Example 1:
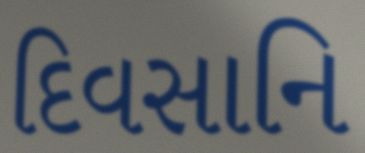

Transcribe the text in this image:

દિવસાનિ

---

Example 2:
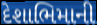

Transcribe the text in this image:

દેશાભિમાની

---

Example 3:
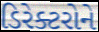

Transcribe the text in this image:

ડિરેક્ટરોને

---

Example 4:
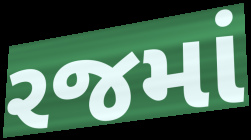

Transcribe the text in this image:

રજમાં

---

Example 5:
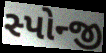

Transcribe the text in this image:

સ્પોન્જી